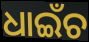
ଧାଇଁଚ